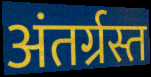
अंतर्ग्रस्त